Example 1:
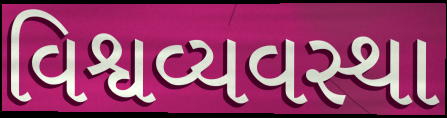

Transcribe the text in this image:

વિશ્વવ્યવસ્થા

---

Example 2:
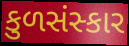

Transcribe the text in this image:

કુળસંસ્કાર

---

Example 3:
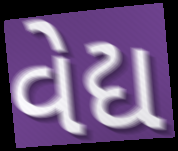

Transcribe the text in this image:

વેદ્ય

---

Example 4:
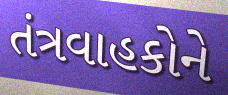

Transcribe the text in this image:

તંત્રવાહકોને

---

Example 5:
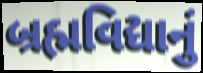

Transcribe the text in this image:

બ્રહ્મવિદ્યાનું